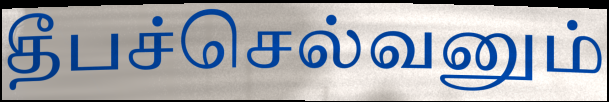
தீபச்செல்வனும்